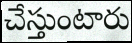
చేస్తుంటారు